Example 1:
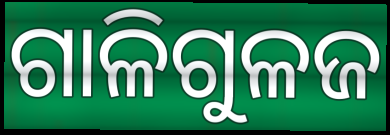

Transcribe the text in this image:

ଗାଳିଗୁଳଜ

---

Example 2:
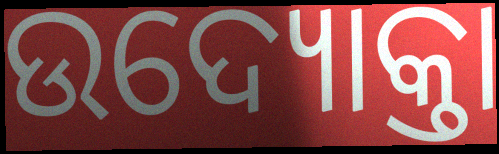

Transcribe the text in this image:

ଉଦ୍ୟୋକ୍ତା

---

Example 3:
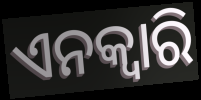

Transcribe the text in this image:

ଏନକ୍ଵାରି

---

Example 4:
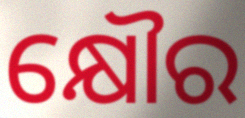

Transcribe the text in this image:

କ୍ଷୌର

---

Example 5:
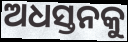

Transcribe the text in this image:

ଅଧସ୍ତନକୁ